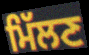
ਮਿੱਲਣ